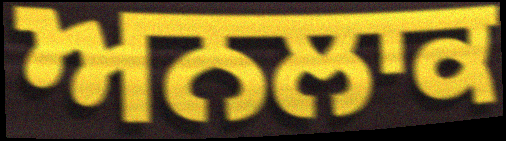
ਅਨਲਾਕ